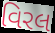
વિરલ